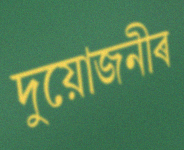
দুয়োজনীৰ